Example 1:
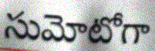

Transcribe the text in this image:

సుమోటోగా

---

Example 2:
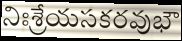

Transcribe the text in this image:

నిఃశ్రేయసకరవుభౌ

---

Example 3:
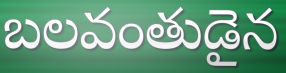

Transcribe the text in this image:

బలవంతుడైన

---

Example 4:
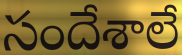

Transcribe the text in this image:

సందేశాలే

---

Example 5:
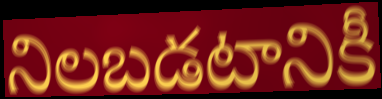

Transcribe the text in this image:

నిలబడటానికీ